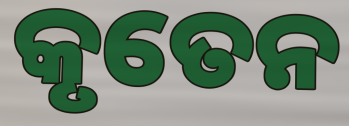
କୃତେନ